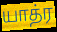
யாத்ர